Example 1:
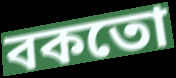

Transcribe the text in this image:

বকতো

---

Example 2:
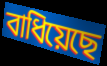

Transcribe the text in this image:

বাধিয়েছে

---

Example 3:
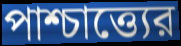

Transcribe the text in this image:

পাশ্চাত্ত্যের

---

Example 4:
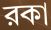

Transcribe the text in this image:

রকা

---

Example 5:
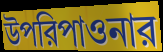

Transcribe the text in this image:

উপরিপাওনার